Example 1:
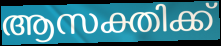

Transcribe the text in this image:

ആസക്തിക്ക്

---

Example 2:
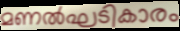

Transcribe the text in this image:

മണൽഘടികാരം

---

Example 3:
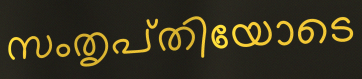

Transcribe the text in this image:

സംതൃപ്‌തിയോടെ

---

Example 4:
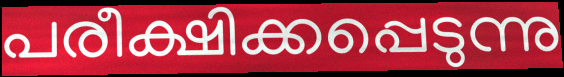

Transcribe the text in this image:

പരീക്ഷിക്കപ്പെടുന്നു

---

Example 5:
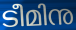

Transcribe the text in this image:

ടീമിനു